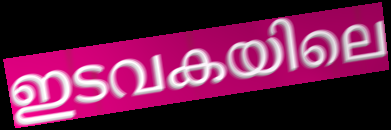
ഇടവകയിലെ